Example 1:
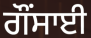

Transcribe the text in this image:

ਗੌਂਸਾਈ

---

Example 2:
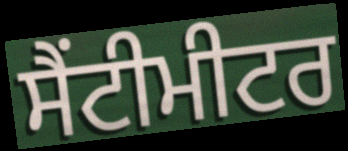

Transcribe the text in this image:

ਸੈਂਟੀਮੀਟਰ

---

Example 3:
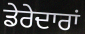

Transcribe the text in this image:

ਡੇਰੇਦਾਰਾਂ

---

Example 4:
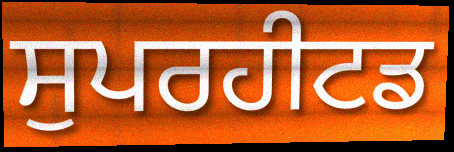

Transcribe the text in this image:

ਸੁਪਰਹੀਟਡ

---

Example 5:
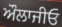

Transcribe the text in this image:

ਔਲਾਜੀਓ